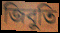
জিবুতি